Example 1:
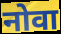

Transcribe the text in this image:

नोवा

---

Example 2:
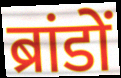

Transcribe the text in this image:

ब्रांडों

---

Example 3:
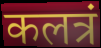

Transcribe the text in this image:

कलत्रं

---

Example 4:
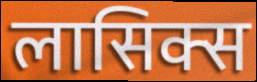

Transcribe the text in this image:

लासिक्स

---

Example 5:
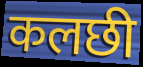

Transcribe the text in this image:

कलछी